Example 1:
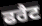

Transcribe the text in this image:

ਫਰੈਟ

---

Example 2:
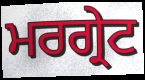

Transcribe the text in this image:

ਮਰਗ੍ਰੇਟ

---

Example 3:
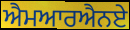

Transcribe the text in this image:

ਐਮਆਰਐਨਏ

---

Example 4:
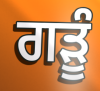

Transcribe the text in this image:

ਗੜੂੰ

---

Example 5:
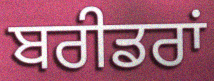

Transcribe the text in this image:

ਬਰੀਡਰਾਂ